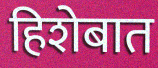
हिशेबात